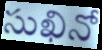
సుఖినో